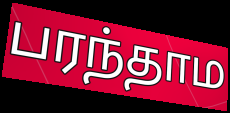
பரந்தாம